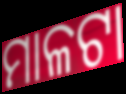
ମାଳଟା